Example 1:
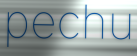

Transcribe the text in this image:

pechu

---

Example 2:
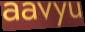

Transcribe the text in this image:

aavyu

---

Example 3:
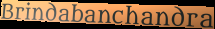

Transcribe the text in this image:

Brindabanchandra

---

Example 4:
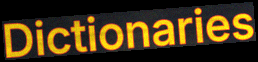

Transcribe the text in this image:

Dictionaries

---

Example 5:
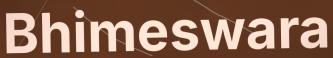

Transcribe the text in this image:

Bhimeswara